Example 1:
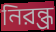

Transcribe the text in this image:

নিরন্ধ্র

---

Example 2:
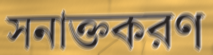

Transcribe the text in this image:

সনাক্তকরণ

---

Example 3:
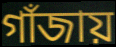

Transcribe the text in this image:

গাঁজায়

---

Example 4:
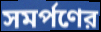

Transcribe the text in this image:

সমর্পণের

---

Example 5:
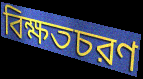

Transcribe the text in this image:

বিক্ষতচরণ